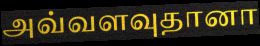
அவ்வளவுதானா